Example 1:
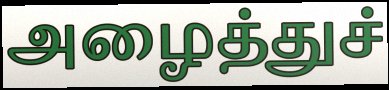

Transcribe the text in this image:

அழைத்துச்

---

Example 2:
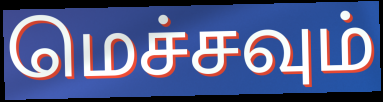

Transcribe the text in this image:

மெச்சவும்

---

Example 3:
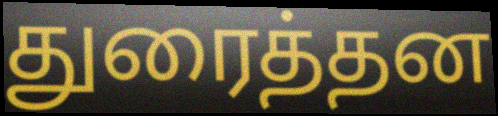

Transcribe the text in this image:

துரைத்தன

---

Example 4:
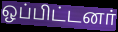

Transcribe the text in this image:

ஒப்பிட்டனர்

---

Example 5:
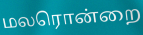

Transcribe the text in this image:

மலரொன்றை